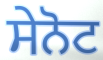
ਸੇਨੋਟ